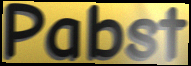
Pabst